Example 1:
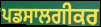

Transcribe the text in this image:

ਪਡਸਾਲਗੀਕਰ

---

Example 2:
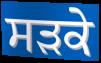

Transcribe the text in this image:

ਸਡ਼ਕੇ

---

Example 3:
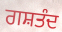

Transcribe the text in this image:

ਗਸ਼ਤੰਦ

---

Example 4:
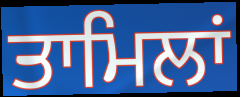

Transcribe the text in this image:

ਤਾਮਿਲਾਂ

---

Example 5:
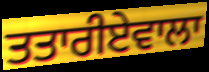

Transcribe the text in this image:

ਤਤਾਰੀਏਵਾਲਾ